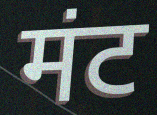
मंट